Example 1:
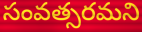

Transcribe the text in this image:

సంవత్సరమని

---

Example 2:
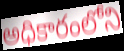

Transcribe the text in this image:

అధికారంలోని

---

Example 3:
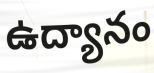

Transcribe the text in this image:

ఉద్యానం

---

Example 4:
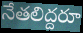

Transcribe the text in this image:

నేతలిద్దరూ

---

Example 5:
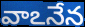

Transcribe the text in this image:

వాఽనేన